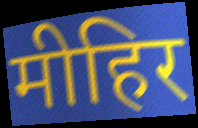
मीहिर